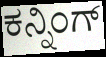
ಕನ್ನಿಂಗ್